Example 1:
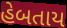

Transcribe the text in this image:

હેબતાય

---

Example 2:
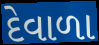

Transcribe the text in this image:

દેવાળા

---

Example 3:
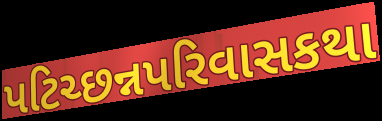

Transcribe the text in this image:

પટિચ્છન્નપરિવાસકથા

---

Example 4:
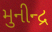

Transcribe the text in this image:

મુનીન્દ્ર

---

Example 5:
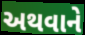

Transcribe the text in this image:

અથવાને